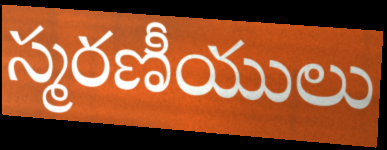
స్మరణీయులు